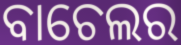
ବାଚେଲର